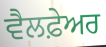
ਵੈਲਫ਼ੇਅਰ